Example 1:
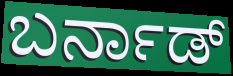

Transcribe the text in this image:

ಬರ್ನಾಡ್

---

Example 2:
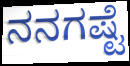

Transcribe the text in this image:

ನನಗಷ್ಟೆ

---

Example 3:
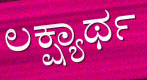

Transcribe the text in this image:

ಲಕ್ಷ್ಯಾರ್ಥ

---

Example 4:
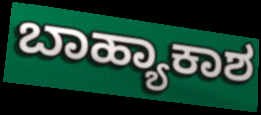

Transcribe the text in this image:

ಬಾಹ್ಯಾಕಾಶ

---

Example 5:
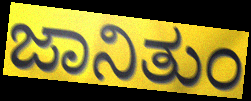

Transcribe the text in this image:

ಜಾನಿತುಂ